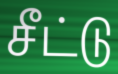
சீட்டு